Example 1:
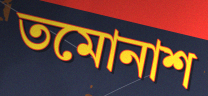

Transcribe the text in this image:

তমোনাশ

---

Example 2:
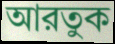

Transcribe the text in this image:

আরতুক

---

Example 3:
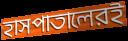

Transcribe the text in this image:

হাসপাতালেরই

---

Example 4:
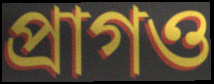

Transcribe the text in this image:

প্রাগও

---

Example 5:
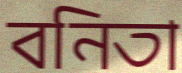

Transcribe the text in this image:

বনিতা